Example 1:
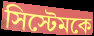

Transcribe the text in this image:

সিস্টেমকে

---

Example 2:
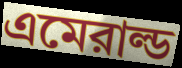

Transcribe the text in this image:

এমেরাল্ড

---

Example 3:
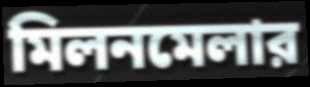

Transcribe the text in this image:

মিলনমেলার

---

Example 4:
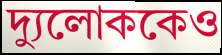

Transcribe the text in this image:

দ্যুলোককেও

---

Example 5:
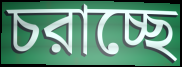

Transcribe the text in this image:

চরাচ্ছে